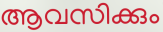
ആവസിക്കും